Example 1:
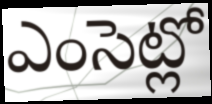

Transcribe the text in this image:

ఎంసెట్లో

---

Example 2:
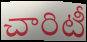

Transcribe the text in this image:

చారిటీ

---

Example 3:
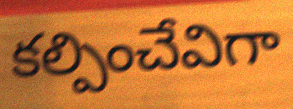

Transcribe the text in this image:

కల్పించేవిగా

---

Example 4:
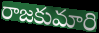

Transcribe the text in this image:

రాజకుమారి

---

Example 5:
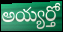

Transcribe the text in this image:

అయ్యర్తో